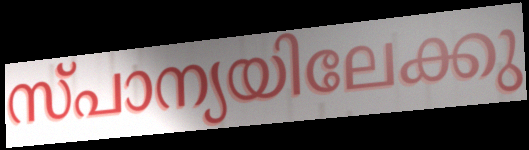
സ്പാന്യയിലേക്കു